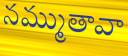
నమ్ముతావా